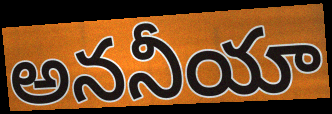
అననీయా